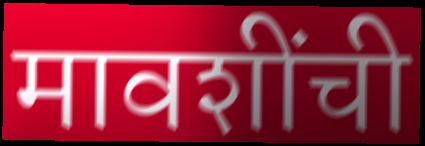
मावशींची